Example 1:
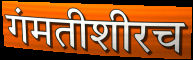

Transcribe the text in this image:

गंमतीशीरच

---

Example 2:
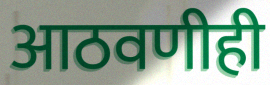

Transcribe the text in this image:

आठवणीही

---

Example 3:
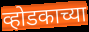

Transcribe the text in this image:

व्होडकाच्या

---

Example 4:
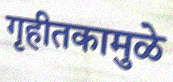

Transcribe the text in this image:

गृहीतकामुळे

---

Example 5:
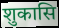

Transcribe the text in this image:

शुकासि